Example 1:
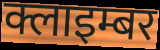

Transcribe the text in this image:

क्लाइम्बर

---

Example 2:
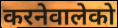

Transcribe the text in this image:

करनेवालेको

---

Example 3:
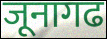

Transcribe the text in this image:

जूनागढ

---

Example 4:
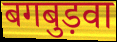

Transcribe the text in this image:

बगबुड़वा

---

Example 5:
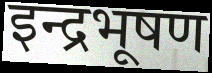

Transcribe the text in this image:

इन्द्रभूषण